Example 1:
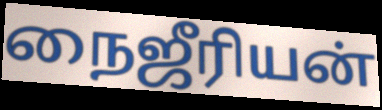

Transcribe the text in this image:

நைஜீரியன்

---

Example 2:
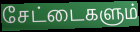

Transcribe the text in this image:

சேட்டைகளும்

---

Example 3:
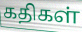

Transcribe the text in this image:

கதிகள்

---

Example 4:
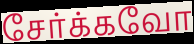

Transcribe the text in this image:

சேர்க்கவோ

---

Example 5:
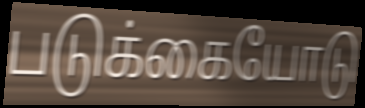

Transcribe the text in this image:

படுக்கையோடு